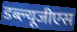
डब्ल्यूजीएस